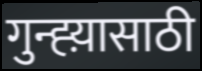
गुन्ह्य़ासाठी